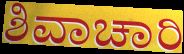
ಶಿವಾಚಾರಿ